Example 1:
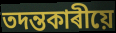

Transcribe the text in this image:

তদন্তকাৰীয়ে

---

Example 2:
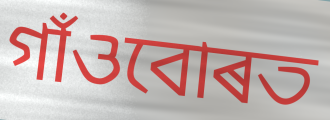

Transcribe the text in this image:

গাঁওবোৰত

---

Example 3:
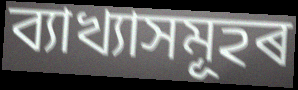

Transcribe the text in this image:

ব্যাখ্যাসমূহৰ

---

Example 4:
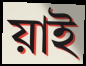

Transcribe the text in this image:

য়াই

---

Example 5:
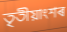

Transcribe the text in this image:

তৃতীয়াংশৰ